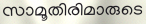
സാമൂതിരിമാരുടെ